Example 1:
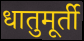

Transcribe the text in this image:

धातुमूर्ती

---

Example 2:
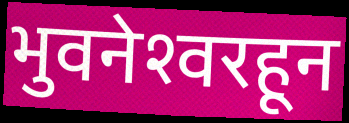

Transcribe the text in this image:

भुवनेश्वरहून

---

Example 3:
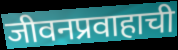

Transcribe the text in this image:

जीवनप्रवाहाची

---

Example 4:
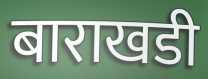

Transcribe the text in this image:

बाराखडी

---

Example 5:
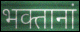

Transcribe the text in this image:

भक्तानां